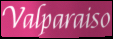
Valparaiso